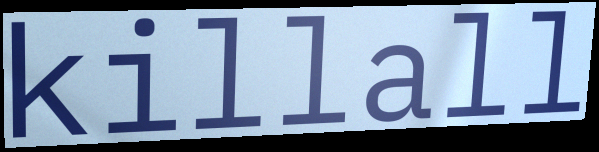
killall